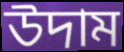
উদাম